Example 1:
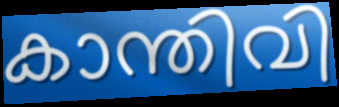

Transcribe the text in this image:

കാന്തിവി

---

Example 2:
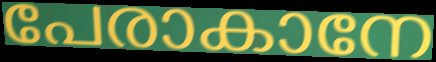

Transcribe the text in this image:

പേരാകാനേ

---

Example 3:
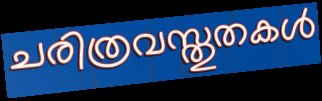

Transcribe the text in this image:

ചരിത്രവസ്തുതകൾ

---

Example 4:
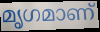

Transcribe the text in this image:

മൃഗമാണ്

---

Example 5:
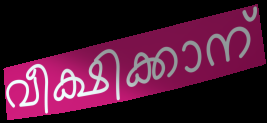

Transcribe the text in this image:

വീക്ഷിക്കാന്